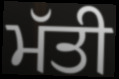
ਮੱਤੀ